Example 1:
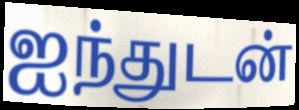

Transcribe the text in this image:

ஐந்துடன்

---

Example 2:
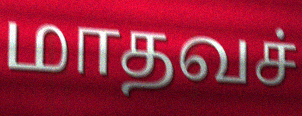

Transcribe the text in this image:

மாதவச்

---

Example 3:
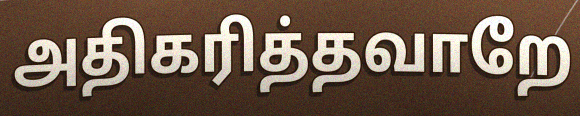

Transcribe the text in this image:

அதிகரித்தவாறே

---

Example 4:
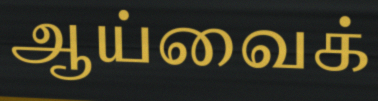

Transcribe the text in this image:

ஆய்வைக்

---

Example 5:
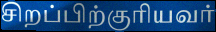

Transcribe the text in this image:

சிறப்பிற்குரியவர்